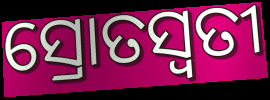
ସ୍ରୋତସ୍ଵତୀ